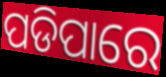
ପଡିପାରେ